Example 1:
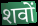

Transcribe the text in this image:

शवों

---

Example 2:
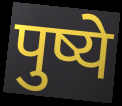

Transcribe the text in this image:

पुष्ये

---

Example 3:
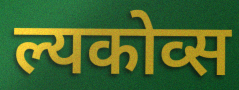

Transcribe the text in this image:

ल्यकोव्स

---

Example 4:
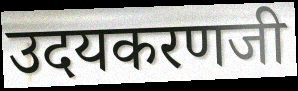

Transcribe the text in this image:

उदयकरणजी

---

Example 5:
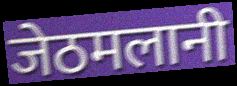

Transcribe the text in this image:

जेठमलानी